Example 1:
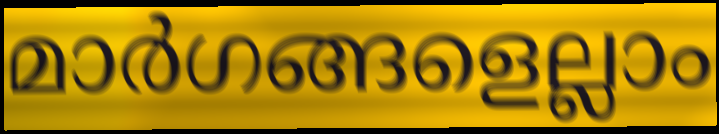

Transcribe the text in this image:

മാർഗങ്ങളെല്ലാം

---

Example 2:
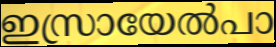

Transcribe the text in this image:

ഇസ്രായേൽപാ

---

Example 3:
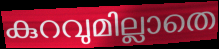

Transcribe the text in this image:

കുറവുമില്ലാതെ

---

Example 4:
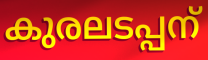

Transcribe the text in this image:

കുരലടപ്പന്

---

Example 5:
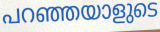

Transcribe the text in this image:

പറഞ്ഞയാളുടെ